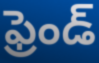
ఫ్రెండ్